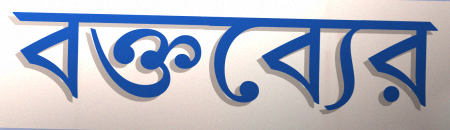
বক্তব্যের